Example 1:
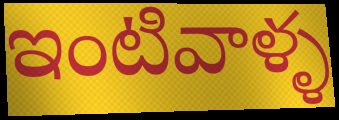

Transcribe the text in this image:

ఇంటివాళ్ళ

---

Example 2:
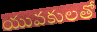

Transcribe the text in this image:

యువకులతో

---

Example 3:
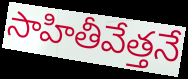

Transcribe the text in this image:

సాహితీవేత్తనే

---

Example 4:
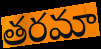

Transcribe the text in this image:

తరమా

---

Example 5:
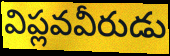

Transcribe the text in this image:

విప్లవవీరుడు